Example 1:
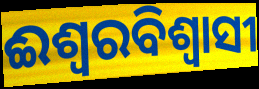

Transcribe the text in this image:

ଈଶ୍ବରବିଶ୍ବାସୀ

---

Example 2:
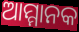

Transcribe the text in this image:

ଆମ୍ମାନକ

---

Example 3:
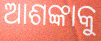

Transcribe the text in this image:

ଆଶଙ୍କାକୁ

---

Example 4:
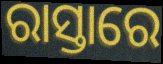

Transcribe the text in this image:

ରାସ୍ତାରେ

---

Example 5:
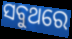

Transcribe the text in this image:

ସବୁଥରେ